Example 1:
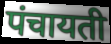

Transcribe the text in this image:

पंचायती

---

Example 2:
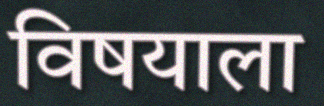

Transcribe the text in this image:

विषयाला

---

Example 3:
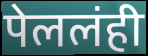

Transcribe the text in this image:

पेललंही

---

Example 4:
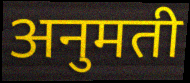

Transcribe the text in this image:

अनुमती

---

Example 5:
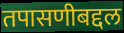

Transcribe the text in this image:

तपासणीबद्दल